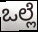
ಒಲ್ಲೆ